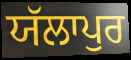
ਯੱਲਾਪੁਰ